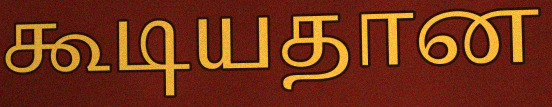
கூடியதான